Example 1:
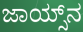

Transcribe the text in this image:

ಜಾಯ್ಸ್‌ನ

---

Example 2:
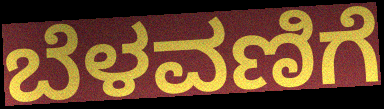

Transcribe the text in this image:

ಬೆಳವಣಿಗೆ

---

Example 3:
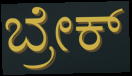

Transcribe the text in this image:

ಬ್ರೇಕ್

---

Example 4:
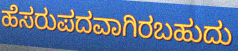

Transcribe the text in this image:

ಹೆಸರುಪದವಾಗಿರಬಹುದು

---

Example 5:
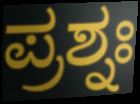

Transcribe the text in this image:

ಪ್ರಶ್ನಃ